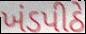
ખંડપીઠે